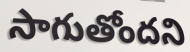
సాగుతోందని